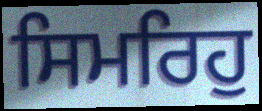
ਸਿਮਰਿਹੁ